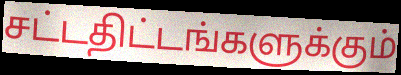
சட்டதிட்டங்களுக்கும்